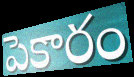
పెకారం